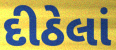
દીઠેલાં